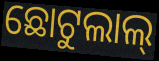
ଛୋଟୁଲାଲ୍